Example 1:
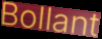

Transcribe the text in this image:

Bollant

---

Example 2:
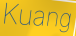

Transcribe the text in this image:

Kuang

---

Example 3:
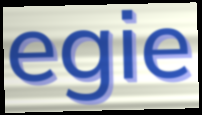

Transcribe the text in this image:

egie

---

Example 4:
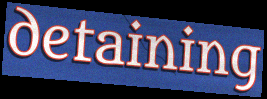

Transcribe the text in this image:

detaining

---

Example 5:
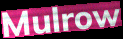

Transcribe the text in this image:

Mulrow